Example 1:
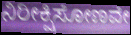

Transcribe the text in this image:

ನಿರೀಕ್ಷಿಸೋಣವೇ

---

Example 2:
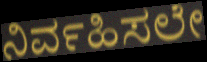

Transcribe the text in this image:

ನಿರ್ವಹಿಸಲೇ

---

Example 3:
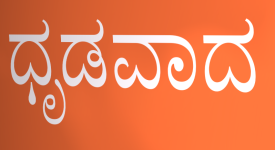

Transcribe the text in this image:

ಧೃಡವಾದ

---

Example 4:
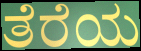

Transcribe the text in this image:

ತೆರೆಯ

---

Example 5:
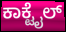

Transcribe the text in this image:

ಕಾಕ್ಟೈಲ್